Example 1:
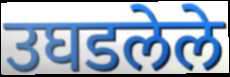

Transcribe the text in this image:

उघडलेले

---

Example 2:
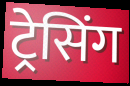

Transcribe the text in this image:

ट्रेसिंग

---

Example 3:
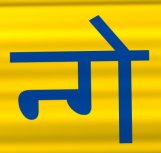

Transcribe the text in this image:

न्गे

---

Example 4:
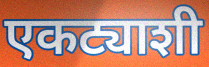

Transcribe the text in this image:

एकट्याशी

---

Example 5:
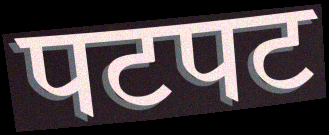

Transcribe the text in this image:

पटपट